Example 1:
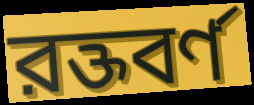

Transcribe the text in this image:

রক্তবর্ণ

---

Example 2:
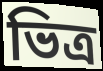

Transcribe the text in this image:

ভিত্র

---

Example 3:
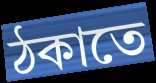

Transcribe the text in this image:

ঠকাতে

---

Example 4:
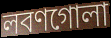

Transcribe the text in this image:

লবণগোলা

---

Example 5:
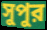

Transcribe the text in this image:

সুপুর